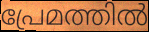
പ്രേമത്തിൽ